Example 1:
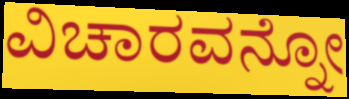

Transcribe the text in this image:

ವಿಚಾರವನ್ನೋ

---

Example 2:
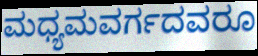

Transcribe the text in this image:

ಮಧ್ಯಮವರ್ಗದವರೂ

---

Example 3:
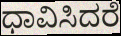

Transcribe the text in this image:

ಧಾವಿಸಿದರೆ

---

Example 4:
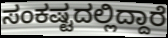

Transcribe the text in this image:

ಸಂಕಷ್ಟದಲ್ಲಿದ್ದಾರೆ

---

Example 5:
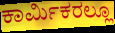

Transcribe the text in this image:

ಕಾರ್ಮಿಕರಲ್ಲೂ